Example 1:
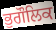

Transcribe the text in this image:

ਭੁਗੌਲਿਕ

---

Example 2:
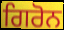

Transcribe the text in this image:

ਗਿਰੋਨ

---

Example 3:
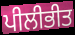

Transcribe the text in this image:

ਪੀਲੀਭੀਤ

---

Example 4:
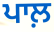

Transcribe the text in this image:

ਪਾਲ਼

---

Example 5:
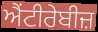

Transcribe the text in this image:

ਐਂਟੀਰੇਬੀਜ਼